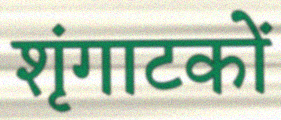
शृंगाटकों